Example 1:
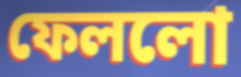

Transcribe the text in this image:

ফেললো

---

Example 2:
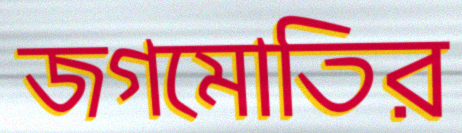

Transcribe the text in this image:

জগমোতির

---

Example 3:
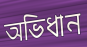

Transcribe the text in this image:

অভিধান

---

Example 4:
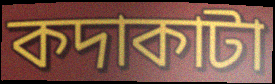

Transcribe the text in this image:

কদাকাটা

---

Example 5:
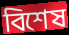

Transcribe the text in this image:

বিশেষ